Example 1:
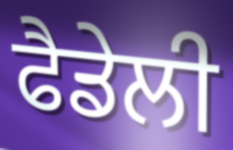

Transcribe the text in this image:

ਫੈਡੇਲੀ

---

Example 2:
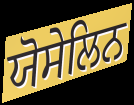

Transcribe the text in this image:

ਯੋਸੇਲਿਨ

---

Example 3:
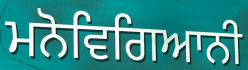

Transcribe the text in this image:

ਮਨੋਵਿਗਿਆਨੀ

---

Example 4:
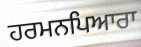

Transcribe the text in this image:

ਹਰਮਨਪਿਆਰਾ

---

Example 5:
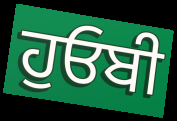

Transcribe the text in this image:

ਹੁਓਬੀ